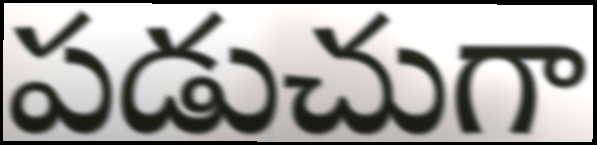
పడుచుగా